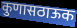
कुणासठाऊक